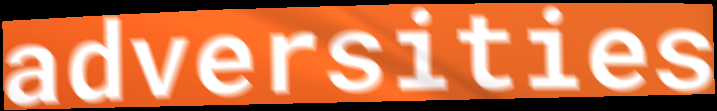
adversities